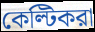
কেল্টিকরা